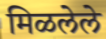
मिळलेले